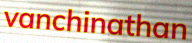
vanchinathan